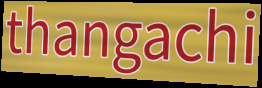
thangachi